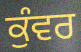
ਕੁੰਵਰ